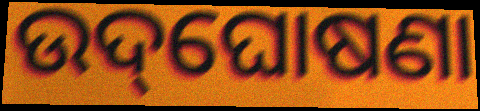
ଉଦ୍‌ଘୋଷଣା